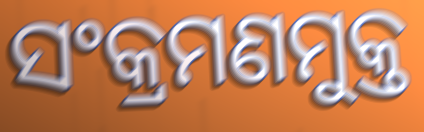
ସଂକ୍ରମଣମୁକ୍ତ